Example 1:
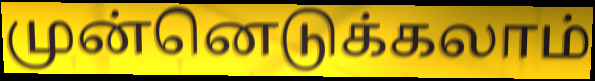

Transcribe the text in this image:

முன்னெடுக்கலாம்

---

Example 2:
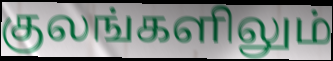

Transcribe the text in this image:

குலங்களிலும்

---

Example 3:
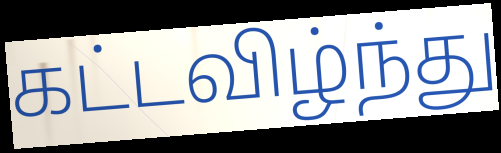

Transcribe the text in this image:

கட்டவிழ்ந்து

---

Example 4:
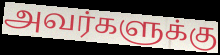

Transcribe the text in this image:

அவர்களுக்கு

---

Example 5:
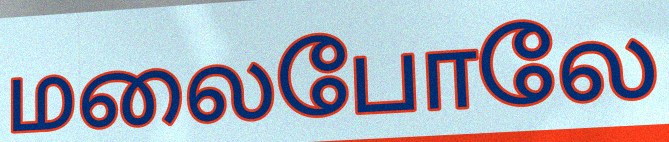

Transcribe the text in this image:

மலைபோலே